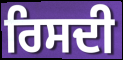
ਰਿਸਦੀ